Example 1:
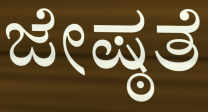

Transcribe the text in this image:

ಜೇಷ್ಠತೆ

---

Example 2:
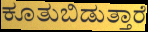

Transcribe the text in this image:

ಕೂತುಬಿಡುತ್ತಾರೆ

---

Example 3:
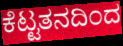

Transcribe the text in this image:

ಕೆಟ್ಟತನದಿಂದ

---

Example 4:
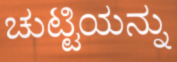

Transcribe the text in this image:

ಚುಟ್ಟಿಯನ್ನು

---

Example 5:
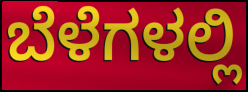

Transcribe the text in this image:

ಬೆಳೆಗಳಲ್ಲಿ